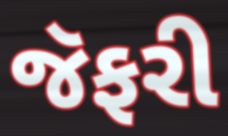
જૅફરી